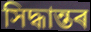
সিদ্ধান্তৰ